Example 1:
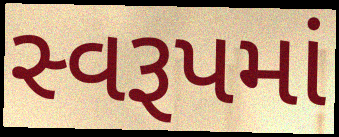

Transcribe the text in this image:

સ્વરૂપમાં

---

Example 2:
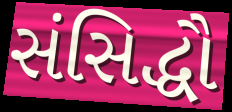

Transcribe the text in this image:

સંસિદ્ધૌ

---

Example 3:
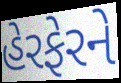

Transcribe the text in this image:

હેરફેરને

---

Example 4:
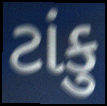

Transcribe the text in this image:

ટાંકુ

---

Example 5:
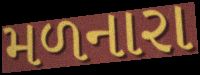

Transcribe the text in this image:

મળનારા